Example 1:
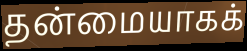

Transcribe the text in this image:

தன்மையாகக்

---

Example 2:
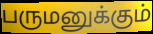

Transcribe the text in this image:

பருமனுக்கும்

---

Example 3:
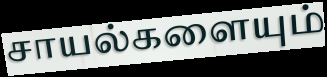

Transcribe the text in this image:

சாயல்களையும்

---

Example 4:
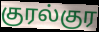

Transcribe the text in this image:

குரல்குர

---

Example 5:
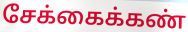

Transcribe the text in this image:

சேக்கைக்கண்